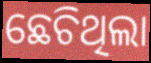
ଛେଚିଥିଲା